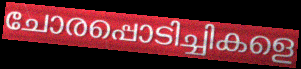
ചോരപ്പൊടിച്ചികളെ